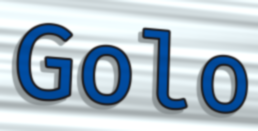
Golo